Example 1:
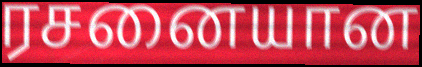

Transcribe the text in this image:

ரசனையான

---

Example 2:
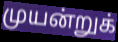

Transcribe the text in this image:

முயன்றுக்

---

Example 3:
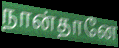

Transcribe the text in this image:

நான்தானே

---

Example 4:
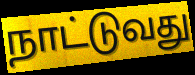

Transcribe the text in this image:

நாட்டுவது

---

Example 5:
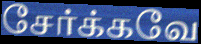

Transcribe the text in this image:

சேர்க்கவே